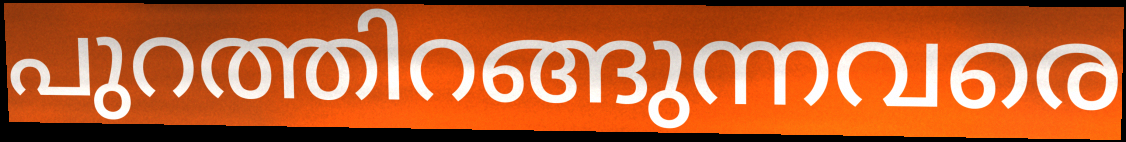
പുറത്തിറങ്ങുന്നവരെ